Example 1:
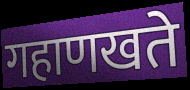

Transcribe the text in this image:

गहाणखते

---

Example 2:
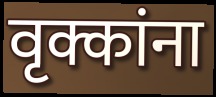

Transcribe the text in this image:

वृक्कांना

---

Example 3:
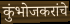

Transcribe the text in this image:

कुंभोजकरांचे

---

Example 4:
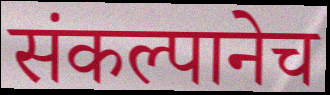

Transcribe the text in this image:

संकल्पानेच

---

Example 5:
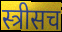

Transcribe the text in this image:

स्त्रीसच